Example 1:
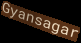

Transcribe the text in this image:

Gyansagar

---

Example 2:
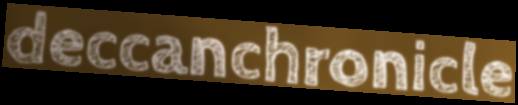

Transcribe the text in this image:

deccanchronicle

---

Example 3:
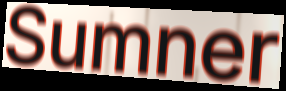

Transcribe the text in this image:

Sumner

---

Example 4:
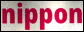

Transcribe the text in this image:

nippon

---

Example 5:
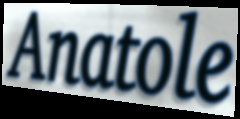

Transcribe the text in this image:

Anatole